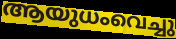
ആയുധംവെച്ചു